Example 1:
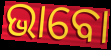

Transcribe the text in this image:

ଭାବୋ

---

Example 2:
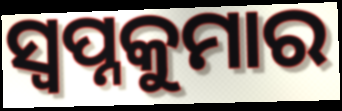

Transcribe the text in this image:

ସ୍ଵପ୍ନକୁମାର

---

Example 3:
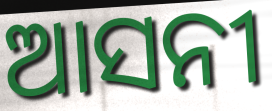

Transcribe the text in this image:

ଆସନୀ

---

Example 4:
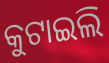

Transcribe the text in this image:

କୁଟାଇଲି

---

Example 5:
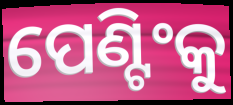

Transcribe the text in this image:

ପେଣ୍ଟିଂକୁ